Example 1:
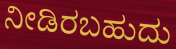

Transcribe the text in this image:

ನೀಡಿರಬಹುದು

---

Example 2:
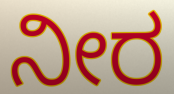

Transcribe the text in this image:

ನೀರ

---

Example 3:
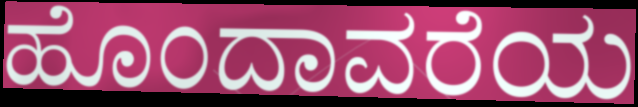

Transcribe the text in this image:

ಹೊಂದಾವರೆಯ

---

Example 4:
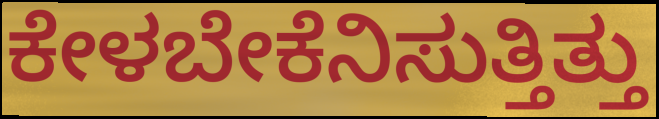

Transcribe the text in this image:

ಕೇಳಬೇಕೆನಿಸುತ್ತಿತ್ತು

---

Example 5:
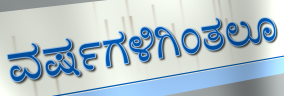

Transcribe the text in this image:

ವರ್ಷಗಳಿಗಿಂತಲೂ